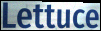
Lettuce